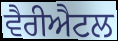
ਵੈਰੀਐਟਲ